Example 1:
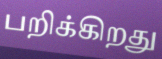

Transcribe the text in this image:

பறிக்கிறது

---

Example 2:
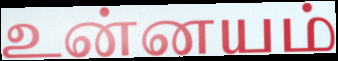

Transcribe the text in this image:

உன்னயம்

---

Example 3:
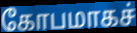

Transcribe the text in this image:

கோபமாகச்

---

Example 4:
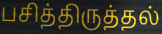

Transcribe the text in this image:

பசித்திருத்தல்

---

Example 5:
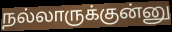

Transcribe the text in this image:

நல்லாருக்குன்னு